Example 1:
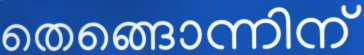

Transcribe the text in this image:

തെങ്ങൊന്നിന്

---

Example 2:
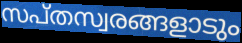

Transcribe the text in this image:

സപ്തസ്വരങ്ങളാടും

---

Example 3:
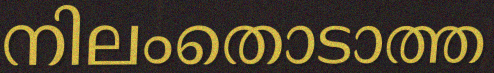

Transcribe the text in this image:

നിലംതൊടാത്ത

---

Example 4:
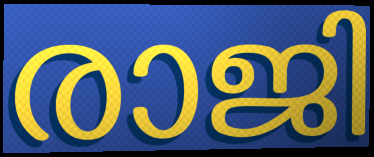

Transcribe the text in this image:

രാജി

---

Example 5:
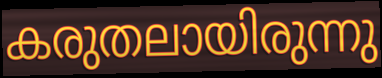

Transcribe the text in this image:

കരുതലായിരുന്നു